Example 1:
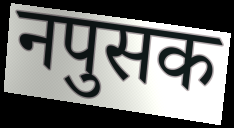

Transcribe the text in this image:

नपुसक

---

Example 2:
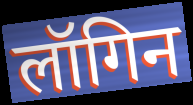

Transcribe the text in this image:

लॉगिन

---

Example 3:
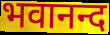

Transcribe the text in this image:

भवानन्द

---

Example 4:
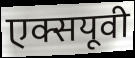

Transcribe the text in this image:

एक्सयूवी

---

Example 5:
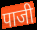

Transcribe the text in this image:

पाजी